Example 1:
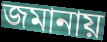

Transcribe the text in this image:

জমানায়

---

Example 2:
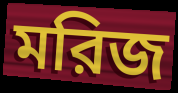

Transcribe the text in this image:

মরিজ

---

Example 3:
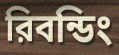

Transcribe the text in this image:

রিবন্ডিং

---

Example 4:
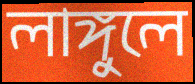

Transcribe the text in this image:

লাঙ্গুলে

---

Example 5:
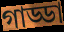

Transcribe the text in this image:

গাড্ডা